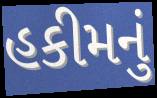
હકીમનું